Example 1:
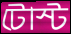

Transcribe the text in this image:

টোস্ট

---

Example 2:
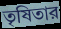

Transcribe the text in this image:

তৃষিতার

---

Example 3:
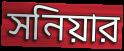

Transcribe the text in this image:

সনিয়ার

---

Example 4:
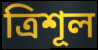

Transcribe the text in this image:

ত্রিশূল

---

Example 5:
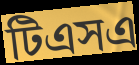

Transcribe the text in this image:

টিএসএ